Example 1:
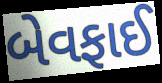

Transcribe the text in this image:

બેવફાઈ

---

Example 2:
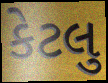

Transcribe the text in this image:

કેટલુ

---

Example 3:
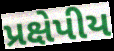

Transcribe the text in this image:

પ્રક્ષેપીય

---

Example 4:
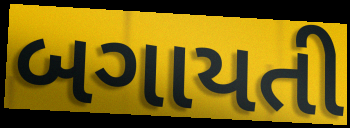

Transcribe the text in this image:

બગાયતી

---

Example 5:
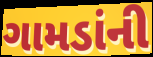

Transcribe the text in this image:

ગામડાંની